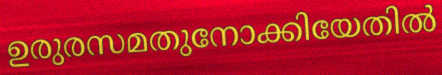
ഉരുരസമതുനോക്കിയേതിൽ